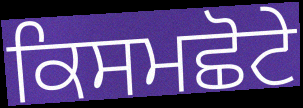
ਕਿਸਮਛੋਟੇ